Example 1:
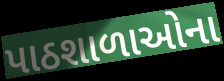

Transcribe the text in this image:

પાઠશાળાઓના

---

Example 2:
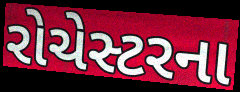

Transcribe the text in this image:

રોચેસ્ટરના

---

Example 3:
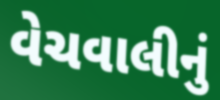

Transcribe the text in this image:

વેચવાલીનું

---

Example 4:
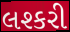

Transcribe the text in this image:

લશ્કરી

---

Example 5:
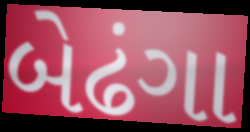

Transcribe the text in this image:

બેઢંગા